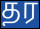
தர